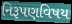
નિરૂપણવિષય